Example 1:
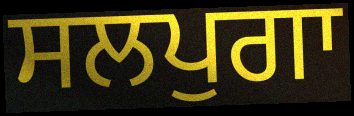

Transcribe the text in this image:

ਸਲਪੁਗਾ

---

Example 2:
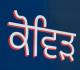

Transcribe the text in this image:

ਕੋਵਿਡ਼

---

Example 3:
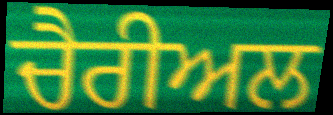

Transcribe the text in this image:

ਚੈਰੀਅਲ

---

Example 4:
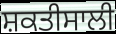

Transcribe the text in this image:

ਸ਼ਕਤੀਸਾਲੀ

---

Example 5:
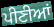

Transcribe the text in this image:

ਪੀਣੀਆਂ